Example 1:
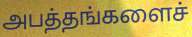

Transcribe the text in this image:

அபத்தங்களைச்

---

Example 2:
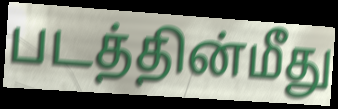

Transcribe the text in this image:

படத்தின்மீது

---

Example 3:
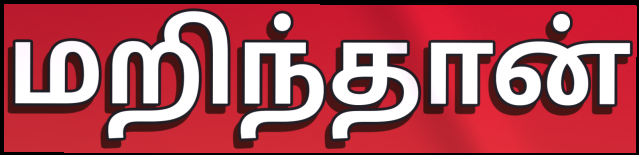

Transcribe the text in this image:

மறிந்தான்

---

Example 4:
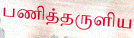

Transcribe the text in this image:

பணித்தருளிய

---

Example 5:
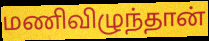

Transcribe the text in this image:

மணிவிழுந்தான்